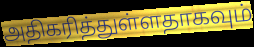
அதிகரித்துள்ளதாகவும்